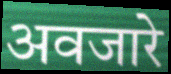
अवजारे